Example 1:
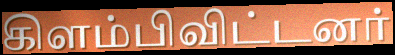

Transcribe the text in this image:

கிளம்பிவிட்டனர்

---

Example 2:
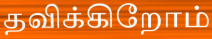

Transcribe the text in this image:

தவிக்கிறோம்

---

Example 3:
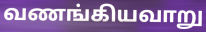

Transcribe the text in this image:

வணங்கியவாறு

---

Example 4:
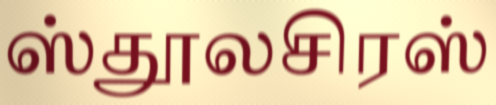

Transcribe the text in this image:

ஸ்தூலசிரஸ்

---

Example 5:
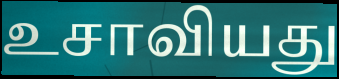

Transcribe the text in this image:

உசாவியது